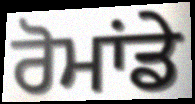
ਰੋਮਾਂਡੇ